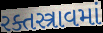
રક્તસ્ત્રાવમાં